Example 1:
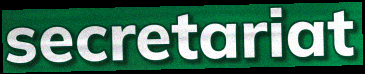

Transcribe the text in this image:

secretariat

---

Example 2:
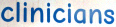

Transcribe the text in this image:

clinicians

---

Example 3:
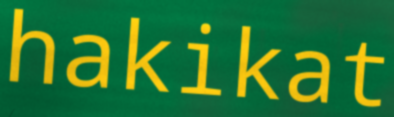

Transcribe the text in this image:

hakikat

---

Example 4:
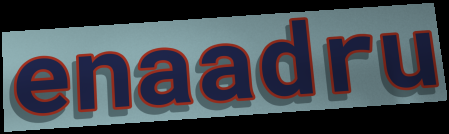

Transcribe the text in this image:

enaadru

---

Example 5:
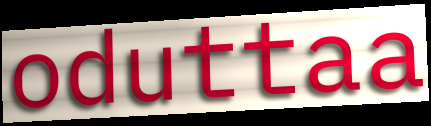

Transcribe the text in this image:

oduttaa